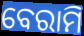
ବେରାମି